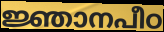
ജ്ഞാനപീഠ